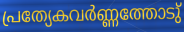
പ്രത്യേകവർണ്ണത്തോടു്